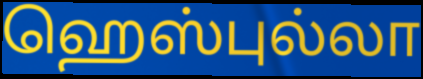
ஹெஸ்புல்லா